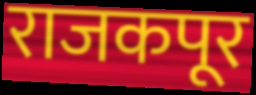
राजकपूर